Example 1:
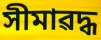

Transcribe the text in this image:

সীমাৱদ্ধ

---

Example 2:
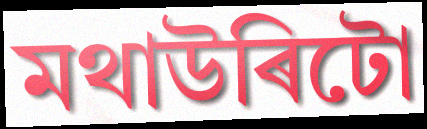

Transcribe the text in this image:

মথাউৰিটো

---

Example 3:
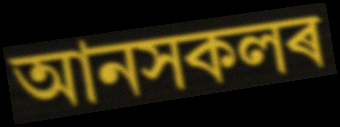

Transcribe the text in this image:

আনসকলৰ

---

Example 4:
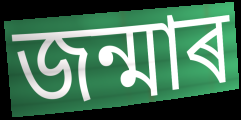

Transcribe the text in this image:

জন্মাৰ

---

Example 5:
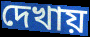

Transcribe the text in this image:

দেখায়